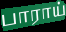
பாராய்